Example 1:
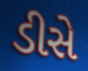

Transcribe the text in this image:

ડીસે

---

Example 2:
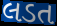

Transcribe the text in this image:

લડત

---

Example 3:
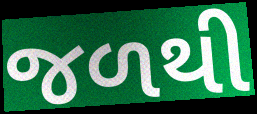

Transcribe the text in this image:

જળથી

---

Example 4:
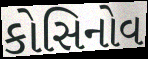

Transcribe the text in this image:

કોસિનોવ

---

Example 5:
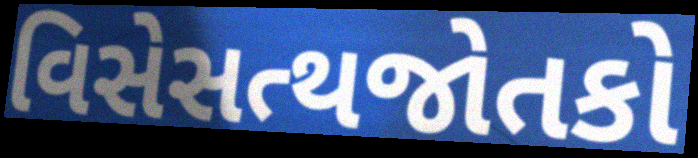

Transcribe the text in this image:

વિસેસત્થજોતકો